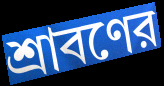
শ্রাবণের